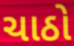
ચાઠો